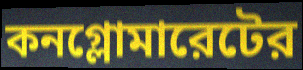
কনগ্লোমারেটের